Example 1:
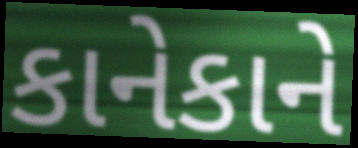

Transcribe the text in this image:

કાનેકાને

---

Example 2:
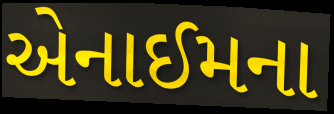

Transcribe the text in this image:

એનાઈમના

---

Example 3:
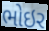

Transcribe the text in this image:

ભોઇર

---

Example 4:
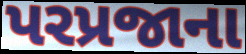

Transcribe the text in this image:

પરપ્રજાના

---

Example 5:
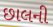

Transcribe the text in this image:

છાલની